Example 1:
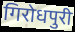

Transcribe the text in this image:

गिरोधपुरी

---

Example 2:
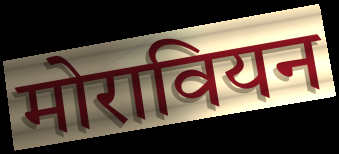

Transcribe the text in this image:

मोरावियन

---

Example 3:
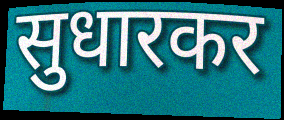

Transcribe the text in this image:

सुधारकर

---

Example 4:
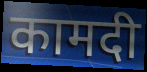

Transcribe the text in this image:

कामदी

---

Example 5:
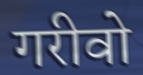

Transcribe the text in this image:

गरीवो